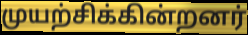
முயற்சிக்கின்றனர்